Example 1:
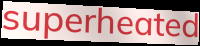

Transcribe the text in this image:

superheated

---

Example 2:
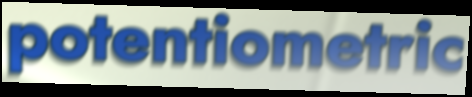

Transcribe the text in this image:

potentiometric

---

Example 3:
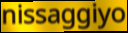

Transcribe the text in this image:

nissaggiyo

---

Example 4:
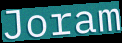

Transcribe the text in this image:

Joram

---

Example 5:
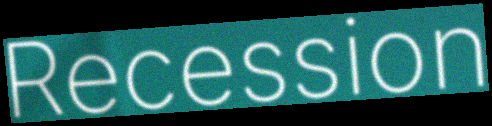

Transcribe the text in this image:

Recession